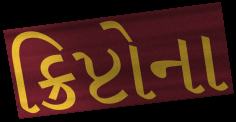
ક્રિપ્ટોના